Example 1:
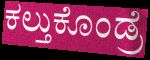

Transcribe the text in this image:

ಕಲ್ತುಕೊಂಡ್ರೆ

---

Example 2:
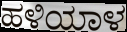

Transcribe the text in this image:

ಹಳಿಯಾಳ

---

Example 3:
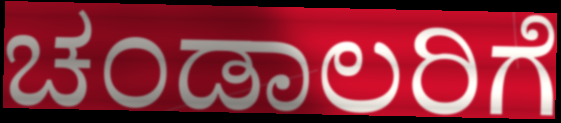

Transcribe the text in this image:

ಚಂಡಾಲರಿಗೆ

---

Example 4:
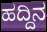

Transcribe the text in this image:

ಹದ್ದಿನ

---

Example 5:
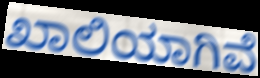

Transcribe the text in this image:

ಖಾಲಿಯಾಗಿವೆ